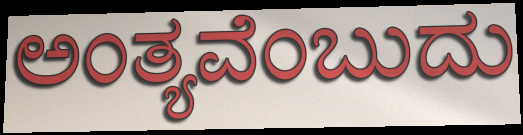
ಅಂತ್ಯವೆಂಬುದು